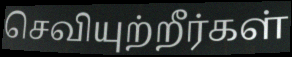
செவியுற்றீர்கள்